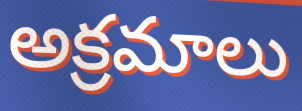
అక్రమాలు